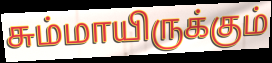
சும்மாயிருக்கும்